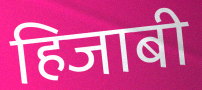
हिजाबी